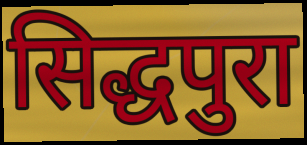
सिद्धपुरा